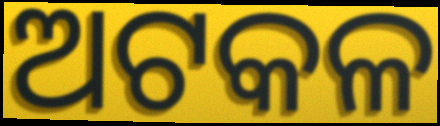
ଅଟକଳ